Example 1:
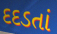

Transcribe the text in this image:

દદડતાં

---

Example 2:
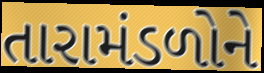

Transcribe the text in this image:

તારામંડળોને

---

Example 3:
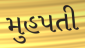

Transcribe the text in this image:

મુહપતી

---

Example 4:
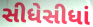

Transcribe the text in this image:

સીધેસીધાં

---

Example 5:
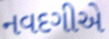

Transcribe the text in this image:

નવદગીએ